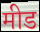
मीड